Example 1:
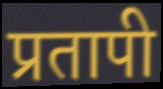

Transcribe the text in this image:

प्रतापी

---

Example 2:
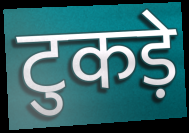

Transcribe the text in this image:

टुकड़े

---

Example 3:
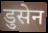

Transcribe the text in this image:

डुसेन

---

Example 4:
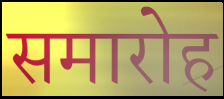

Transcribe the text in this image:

समारोह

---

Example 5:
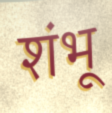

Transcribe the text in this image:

शंभू